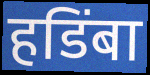
हडिंबा